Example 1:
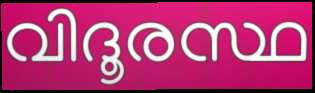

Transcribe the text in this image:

വിദൂരസ്ഥ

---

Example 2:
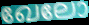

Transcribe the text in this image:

ഖേലോ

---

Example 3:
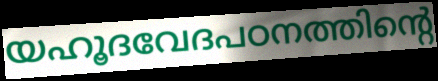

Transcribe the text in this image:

യഹൂദവേദപഠനത്തിന്റെ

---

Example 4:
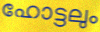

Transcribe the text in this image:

ഹോട്ടലും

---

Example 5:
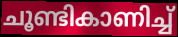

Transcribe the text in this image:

ചൂണ്ടികാണിച്ച്